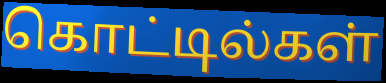
கொட்டில்கள்